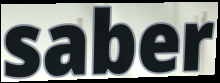
saber